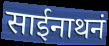
साईनाथनं